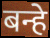
बन्हे